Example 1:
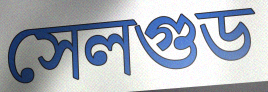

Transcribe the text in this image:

সেলগুড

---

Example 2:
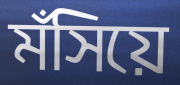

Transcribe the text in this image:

মঁসিয়ে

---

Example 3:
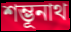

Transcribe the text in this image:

শম্ভূনাথ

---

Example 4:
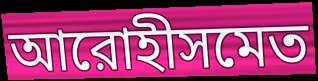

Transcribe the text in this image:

আরোহীসমেত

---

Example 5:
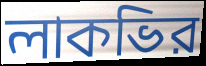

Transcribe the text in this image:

লাকভির